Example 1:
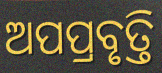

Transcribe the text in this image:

ଅପପ୍ରବୃତ୍ତି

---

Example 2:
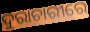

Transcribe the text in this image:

ଦୁରାଚାରୀରେ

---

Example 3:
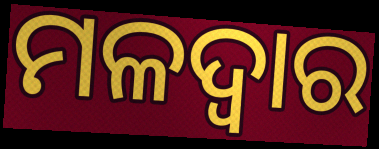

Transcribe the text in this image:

ମଳଦ୍ଵାର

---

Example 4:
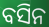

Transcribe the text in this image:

ବସିନ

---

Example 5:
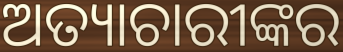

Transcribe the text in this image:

ଅତ୍ୟାଚାରୀଙ୍କର